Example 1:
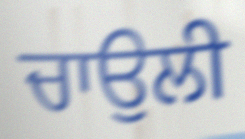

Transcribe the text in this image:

ਚਾਉਲੀ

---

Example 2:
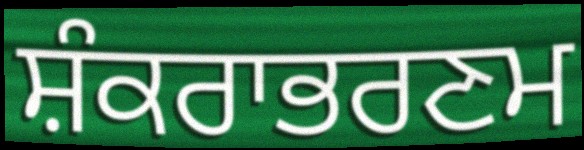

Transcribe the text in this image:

ਸ਼ੰਕਰਾਭਰਣਮ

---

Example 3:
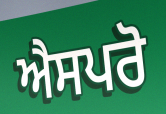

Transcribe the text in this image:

ਐਸਪਰੋ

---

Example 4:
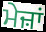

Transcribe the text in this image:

ਮੇਜ਼ਾਂ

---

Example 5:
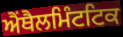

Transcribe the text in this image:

ਐਂਥੈਲਮਿੰਟਟਿਕ